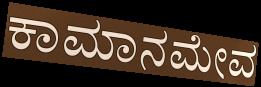
ಕಾಮಾನಮೇವ